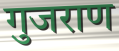
गुजराण